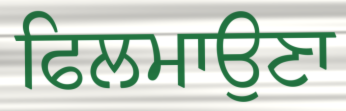
ਫਿਲਮਾਉਣਾ